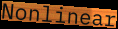
Nonlinear